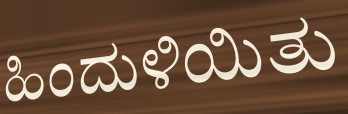
ಹಿಂದುಳಿಯಿತು